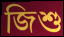
জিশু